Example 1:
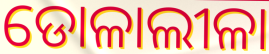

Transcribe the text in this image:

ଡୋଳାଲୀଳା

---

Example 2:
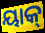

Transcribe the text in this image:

ୟାକ୍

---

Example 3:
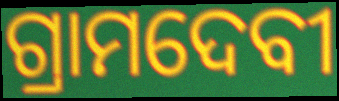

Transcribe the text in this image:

ଗ୍ରାମଦେବୀ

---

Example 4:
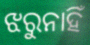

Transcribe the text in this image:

ଝରୁନାହିଁ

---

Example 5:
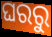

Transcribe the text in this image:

ଘରରୁ